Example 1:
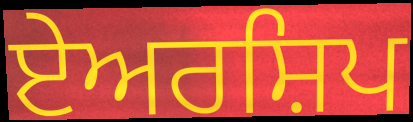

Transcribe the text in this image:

ਏਅਰਸ਼ਿਪ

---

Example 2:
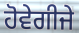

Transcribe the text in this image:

ਹੋਵੇਗੀਜੇ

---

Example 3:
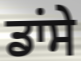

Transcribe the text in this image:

ਡਾਂਸੇ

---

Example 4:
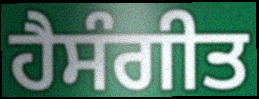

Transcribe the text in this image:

ਹੈਸੰਗੀਤ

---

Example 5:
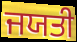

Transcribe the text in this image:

ਜਯਤੀ